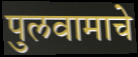
पुलवामाचे